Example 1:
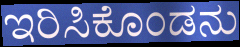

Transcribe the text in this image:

ಇರಿಸಿಕೊಂಡನು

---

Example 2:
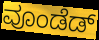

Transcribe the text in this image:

ವೂಂಡೆಡ್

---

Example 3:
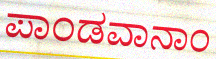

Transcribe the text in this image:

ಪಾಂಡವಾನಾಂ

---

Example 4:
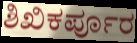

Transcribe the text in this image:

ಶಿಖಿಕರ್ಪೂರ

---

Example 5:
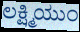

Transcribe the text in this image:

ಲಕ್ಷ್ಮಿಯುಂ